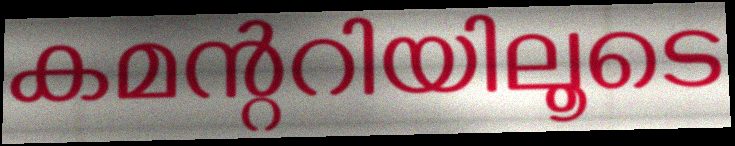
കമന്ററിയിലൂടെ